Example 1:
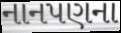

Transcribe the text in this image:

નાનપણના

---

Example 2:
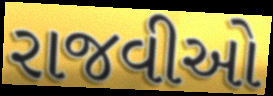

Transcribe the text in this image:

રાજવીઓ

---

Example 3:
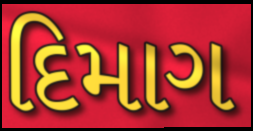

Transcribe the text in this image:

દિમાગ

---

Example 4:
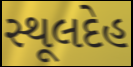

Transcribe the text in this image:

સ્થૂલદેહ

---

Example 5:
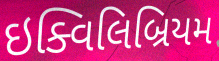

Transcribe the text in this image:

ઇક્વિલિબ્રિયમ